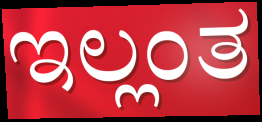
ಇಲ್ಲಂತ